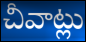
చీవాట్లు